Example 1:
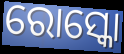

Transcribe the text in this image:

ରୋସ୍କୋ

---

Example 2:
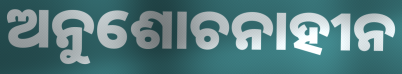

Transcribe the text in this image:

ଅନୁଶୋଚନାହୀନ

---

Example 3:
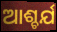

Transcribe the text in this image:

ଆଶ୍ଚର୍ଯ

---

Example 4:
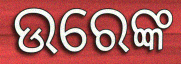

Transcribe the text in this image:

ଉରେଙ୍କ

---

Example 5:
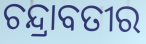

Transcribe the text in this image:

ଚନ୍ଦ୍ରାବତୀର